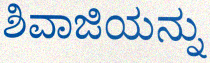
ಶಿವಾಜಿಯನ್ನು